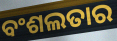
ବଂଶଲତାର